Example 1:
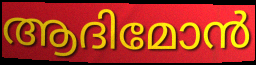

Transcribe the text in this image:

ആദിമോൻ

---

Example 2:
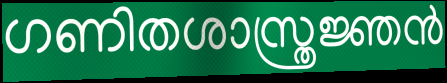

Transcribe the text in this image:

ഗണിതശാസ്ത്രജ്ഞൻ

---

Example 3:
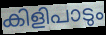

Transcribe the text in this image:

കിളിപാടും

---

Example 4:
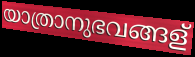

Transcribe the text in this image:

യാത്രാനുഭവങ്ങള്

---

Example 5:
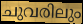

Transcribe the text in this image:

ചുവരിലും